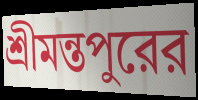
শ্রীমন্তপুরের